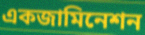
একজামিনেশন